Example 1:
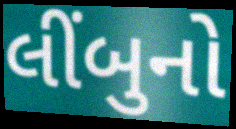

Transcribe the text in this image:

લીંબુનો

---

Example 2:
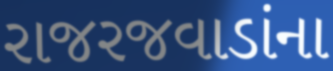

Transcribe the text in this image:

રાજરજવાડાંના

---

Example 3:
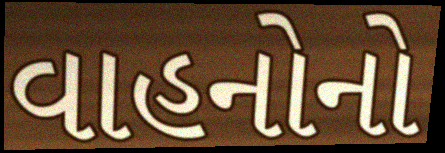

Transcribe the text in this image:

વાહનોનો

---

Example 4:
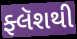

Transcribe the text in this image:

ફ્લૅશથી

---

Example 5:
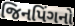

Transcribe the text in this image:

જિનપિંગનો